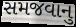
સમજવાનુ